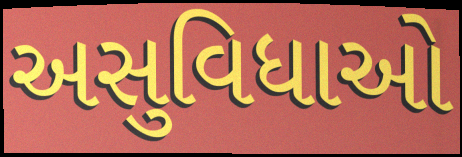
અસુવિધાઓ